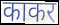
काकर